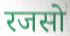
रजसो